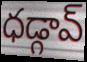
ధడ్గావ్